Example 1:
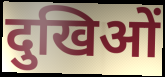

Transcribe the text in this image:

दुखिओं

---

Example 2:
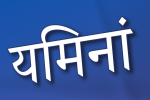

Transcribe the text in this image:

यमिनां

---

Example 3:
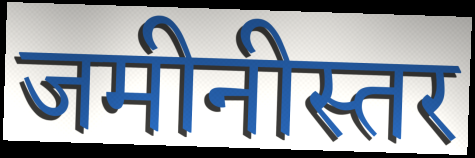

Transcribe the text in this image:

जमीनीस्तर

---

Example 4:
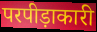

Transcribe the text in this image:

परपीड़ाकारी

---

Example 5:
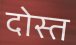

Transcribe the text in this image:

दोस्‍त